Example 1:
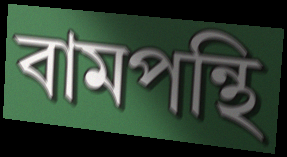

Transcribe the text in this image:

বামপন্থি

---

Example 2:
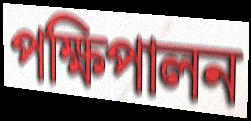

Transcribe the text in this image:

পক্ষিপালন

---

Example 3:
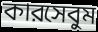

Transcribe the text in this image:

কারসেবুম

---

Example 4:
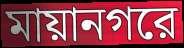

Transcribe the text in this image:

মায়ানগরে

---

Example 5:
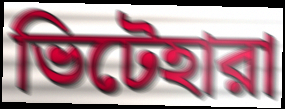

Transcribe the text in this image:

ভিটেহারা